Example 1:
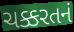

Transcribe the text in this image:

ચક્કરતનં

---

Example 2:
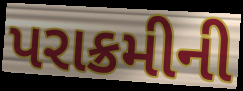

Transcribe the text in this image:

પરાક્રમીની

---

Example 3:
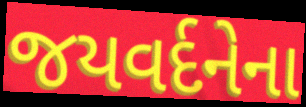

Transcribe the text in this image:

જયવર્દનેના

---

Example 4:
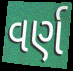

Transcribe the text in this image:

વર્ણ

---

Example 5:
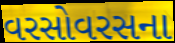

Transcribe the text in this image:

વરસોવરસના